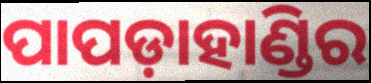
ପାପଡ଼ାହାଣ୍ଡିର